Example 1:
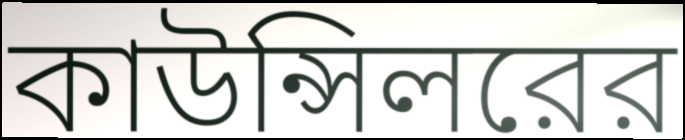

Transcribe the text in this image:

কাউন্সিলরের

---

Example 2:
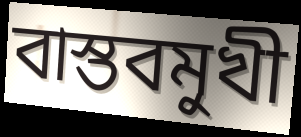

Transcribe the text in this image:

বাস্তবমুখী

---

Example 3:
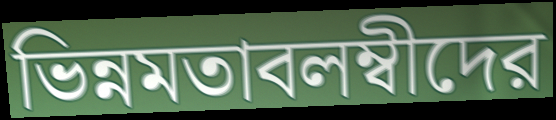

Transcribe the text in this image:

ভিন্নমতাবলম্বীদের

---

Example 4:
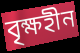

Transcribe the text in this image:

বৃক্ষহীন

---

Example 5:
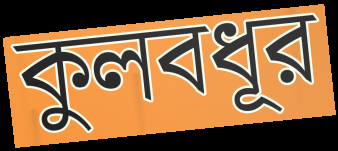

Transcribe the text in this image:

কুলবধূর